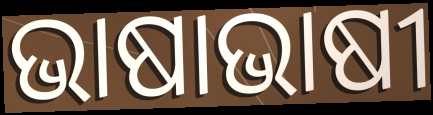
ଭାଷାଭାଷୀ